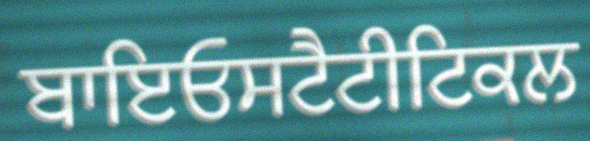
ਬਾਇਓਸਟੈਟੀਟਿਕਲ